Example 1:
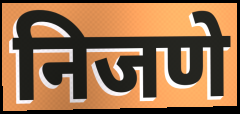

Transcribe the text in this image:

निजणे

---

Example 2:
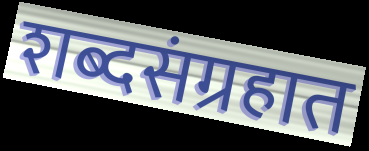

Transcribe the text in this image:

शब्दसंग्रहात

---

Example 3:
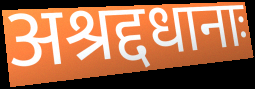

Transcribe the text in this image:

अश्रद्दधानाः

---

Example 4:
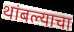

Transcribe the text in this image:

थांबल्याचा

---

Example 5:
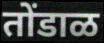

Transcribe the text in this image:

तोंडाळ